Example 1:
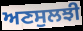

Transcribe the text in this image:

ਅਣਸੁਲਝੀ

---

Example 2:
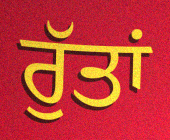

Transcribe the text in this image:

ਰੁੱਤਾਂ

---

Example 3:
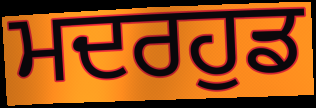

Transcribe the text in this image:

ਮਦਰਹੁਡ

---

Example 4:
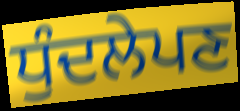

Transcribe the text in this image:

ਧੁੰਦਲੇਪਣ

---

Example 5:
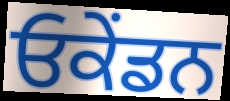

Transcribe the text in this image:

ਓਕੇਂਡਨ